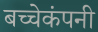
बच्चेकंपनी